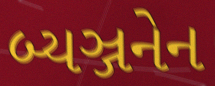
બ્યઞ્જનેન